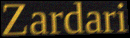
Zardari